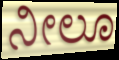
ನೀಲೂ